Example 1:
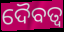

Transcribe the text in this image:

ଦୈବତ୍ଵ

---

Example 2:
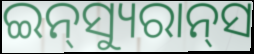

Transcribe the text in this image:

ଇନ୍‌ସ୍ୟୁରାନ୍‌ସ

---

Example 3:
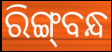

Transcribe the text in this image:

ରିଙ୍ଗ୍‌ବନ୍ଧ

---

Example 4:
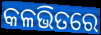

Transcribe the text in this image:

କଳଭିତରେ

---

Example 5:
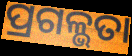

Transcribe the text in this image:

ପ୍ରଗଳ୍ଭତା